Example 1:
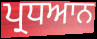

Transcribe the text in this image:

ਪ੍ਰਧਆਨ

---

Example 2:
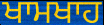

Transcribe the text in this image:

ਖਾਮਖਾਹ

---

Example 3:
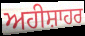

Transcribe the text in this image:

ਅਹੀਸ਼ਾਹਰ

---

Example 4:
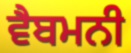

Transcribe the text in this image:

ਵੈਬਮਨੀ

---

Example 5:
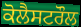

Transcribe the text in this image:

ਕੋਲੈਸਟਰੌਲ